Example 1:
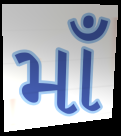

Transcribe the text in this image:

માઁ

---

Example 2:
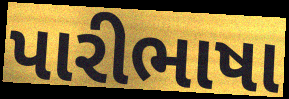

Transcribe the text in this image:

પારીભાષા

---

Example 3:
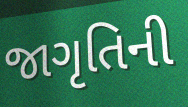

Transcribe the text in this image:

જાગૃતિની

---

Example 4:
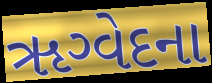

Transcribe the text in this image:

ૠગ્વેદના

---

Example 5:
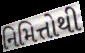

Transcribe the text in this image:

નિમિત્તોથી